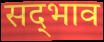
सद्‍भाव